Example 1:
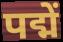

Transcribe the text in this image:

पद्में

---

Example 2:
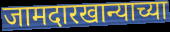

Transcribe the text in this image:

जामदारखान्याच्या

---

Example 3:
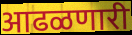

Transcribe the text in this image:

आढळणारी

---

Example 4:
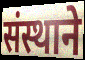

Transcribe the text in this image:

संस्थाने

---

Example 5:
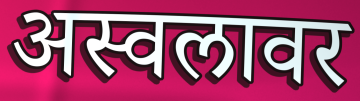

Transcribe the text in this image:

अस्वलावर